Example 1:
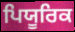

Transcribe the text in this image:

ਪਿਯੂਰਿਕ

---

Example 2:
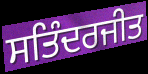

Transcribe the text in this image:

ਸਤਿੰਦਰਜੀਤ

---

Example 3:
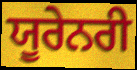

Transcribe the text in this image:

ਯੂਰੇਨਰੀ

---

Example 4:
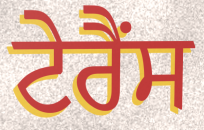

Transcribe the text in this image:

ਟੇਰੈਂਸ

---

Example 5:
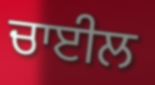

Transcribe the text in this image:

ਚਾਈਲ